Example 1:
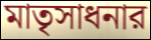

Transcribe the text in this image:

মাতৃসাধনার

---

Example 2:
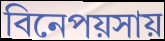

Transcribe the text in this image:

বিনেপয়সায়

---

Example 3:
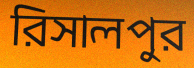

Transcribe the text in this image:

রিসালপুর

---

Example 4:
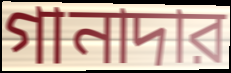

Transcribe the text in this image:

গানাদার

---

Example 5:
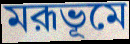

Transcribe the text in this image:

মরূভূমে